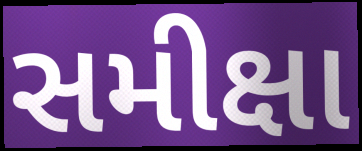
સમીક્ષા